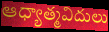
ఆధ్యాత్మవిదులు